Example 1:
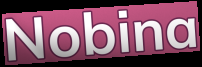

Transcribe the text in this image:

Nobina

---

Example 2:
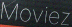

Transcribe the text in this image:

Moviez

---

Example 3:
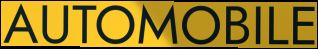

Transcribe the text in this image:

AUTOMOBILE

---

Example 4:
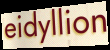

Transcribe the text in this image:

eidyllion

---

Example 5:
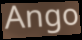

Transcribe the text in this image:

Ango